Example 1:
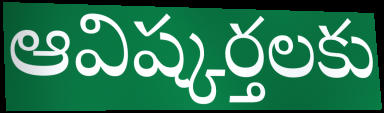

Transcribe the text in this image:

ఆవిష్కర్తలకు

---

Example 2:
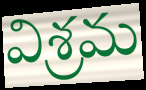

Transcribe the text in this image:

విశ్రమ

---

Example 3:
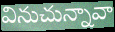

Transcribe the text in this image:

వినుచున్నావా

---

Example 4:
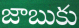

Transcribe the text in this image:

జాబుకు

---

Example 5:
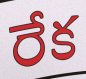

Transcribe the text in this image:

రేక